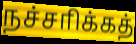
நச்சரிக்கத்